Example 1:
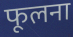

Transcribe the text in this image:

फूलना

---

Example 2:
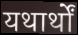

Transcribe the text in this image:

यथार्थों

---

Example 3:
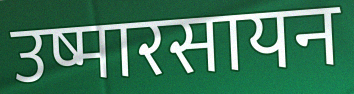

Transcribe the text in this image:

उष्मारसायन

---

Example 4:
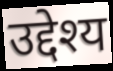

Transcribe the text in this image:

उद्देश्य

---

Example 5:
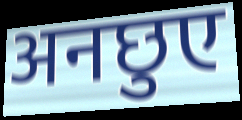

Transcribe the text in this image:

अनछुए